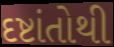
દષ્ટાંતોથી